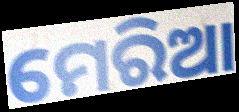
ମେରିଆ